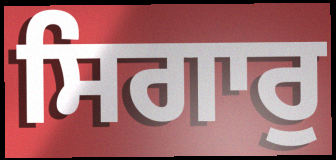
ਸਿਗਾਰੁ